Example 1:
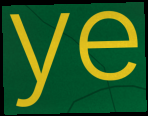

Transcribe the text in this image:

ye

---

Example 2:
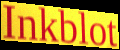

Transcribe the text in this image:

Inkblot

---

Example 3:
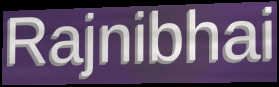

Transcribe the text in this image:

Rajnibhai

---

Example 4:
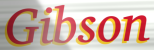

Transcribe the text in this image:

Gibson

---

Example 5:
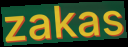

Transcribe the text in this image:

zakas